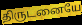
திருடனையே